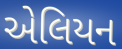
એલિયન